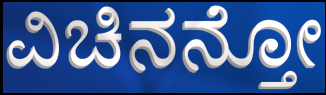
ವಿಚಿನನ್ತೋ